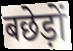
बछेड़ों